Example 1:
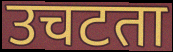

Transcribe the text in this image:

उचटता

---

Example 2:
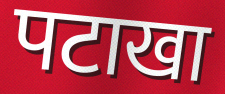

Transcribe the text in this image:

पटाखा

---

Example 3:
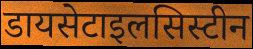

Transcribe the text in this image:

डायसेटाइलसिस्टीन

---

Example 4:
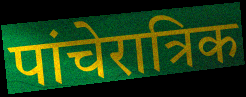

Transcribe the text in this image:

पांचेरात्रिक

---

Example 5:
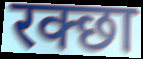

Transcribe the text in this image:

रक्छा